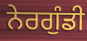
ਨੇਰਗੁੰਡੀ